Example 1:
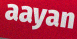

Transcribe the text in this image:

aayan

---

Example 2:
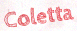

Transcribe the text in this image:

Coletta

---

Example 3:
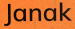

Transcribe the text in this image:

Janak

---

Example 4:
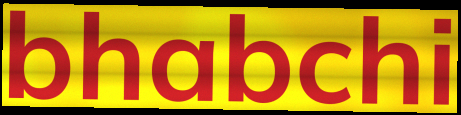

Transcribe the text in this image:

bhabchi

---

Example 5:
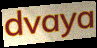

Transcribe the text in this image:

dvaya